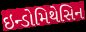
ઇન્ડોમિથેસિન